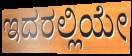
ಇದರಲ್ಲಿಯೇ